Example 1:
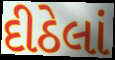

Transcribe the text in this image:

દીઠેલાં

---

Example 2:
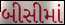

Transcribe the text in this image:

બીસીમાં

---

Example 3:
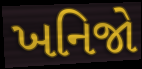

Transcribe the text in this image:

ખનિજો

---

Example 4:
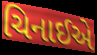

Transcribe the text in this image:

ચિનાઈએ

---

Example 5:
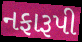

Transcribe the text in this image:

નફારૂપી